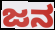
ಜನ